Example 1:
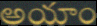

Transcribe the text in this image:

అయాం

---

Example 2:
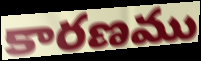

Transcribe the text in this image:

కారణము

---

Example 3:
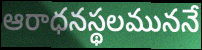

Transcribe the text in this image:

ఆరాధనస్థలముననే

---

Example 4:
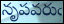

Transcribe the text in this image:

నృపవరుఁ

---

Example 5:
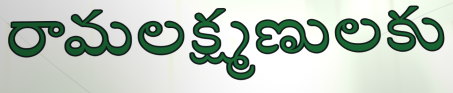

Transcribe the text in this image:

రామలక్ష్మణులకు